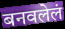
बनवलेलं